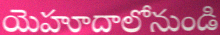
యెహూదాలోనుండి